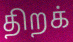
திறக்